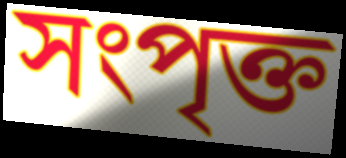
সংপৃক্ত